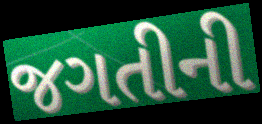
જગતીની